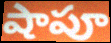
షాపూ